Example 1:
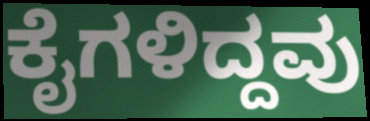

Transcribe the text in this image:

ಕೈಗಳಿದ್ದವು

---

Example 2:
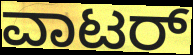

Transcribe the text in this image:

ವಾಟರ್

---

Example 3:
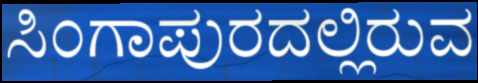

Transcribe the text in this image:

ಸಿಂಗಾಪುರದಲ್ಲಿರುವ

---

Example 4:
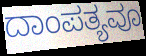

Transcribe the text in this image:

ದಾಂಪತ್ಯವೂ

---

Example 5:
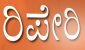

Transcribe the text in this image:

ರಿಪೇರಿ